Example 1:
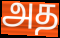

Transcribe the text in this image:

அத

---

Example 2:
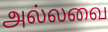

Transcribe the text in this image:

அல்லவை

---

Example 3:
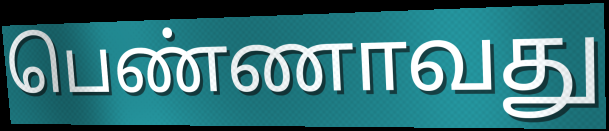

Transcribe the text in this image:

பெண்ணாவது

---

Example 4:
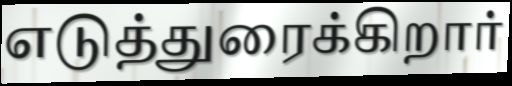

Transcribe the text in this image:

எடுத்துரைக்கிறார்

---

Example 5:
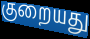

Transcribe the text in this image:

குறையது